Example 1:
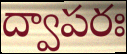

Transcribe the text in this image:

ద్వాపరః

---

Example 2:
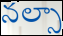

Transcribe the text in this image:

నల్సా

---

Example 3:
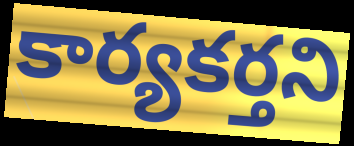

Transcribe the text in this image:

కార్యకర్తని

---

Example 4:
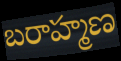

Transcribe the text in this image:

బరాహ్మణ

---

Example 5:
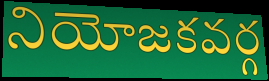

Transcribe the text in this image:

నియోజకవర్గ